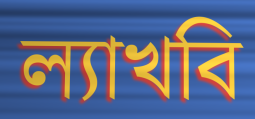
ল্যাখবি